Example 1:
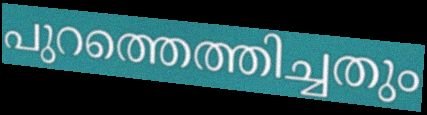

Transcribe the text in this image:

പുറത്തെത്തിച്ചതും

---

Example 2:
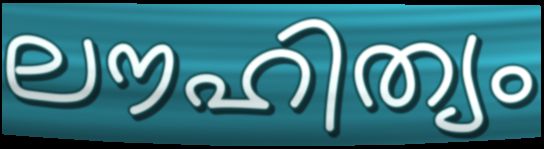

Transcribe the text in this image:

ലൗഹിത്യം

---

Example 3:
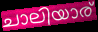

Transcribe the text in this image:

ചാലിയാര്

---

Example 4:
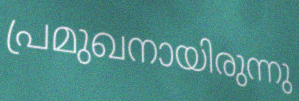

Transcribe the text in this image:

പ്രമുഖനായിരുന്നു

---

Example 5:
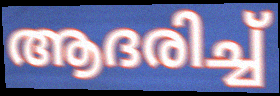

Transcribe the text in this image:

ആദരിച്ച്